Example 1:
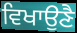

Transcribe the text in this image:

ਵਿਖਾਉਣੈ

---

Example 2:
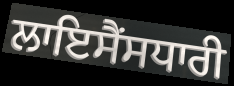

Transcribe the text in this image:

ਲਾਇਸੈਂਸਧਾਰੀ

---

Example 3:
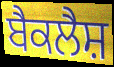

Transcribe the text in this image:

ਬੈਕਲੈਸ਼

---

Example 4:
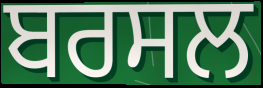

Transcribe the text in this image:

ਬਰਸਲ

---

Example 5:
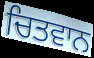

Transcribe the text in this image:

ਚਿਤਵਾਨ